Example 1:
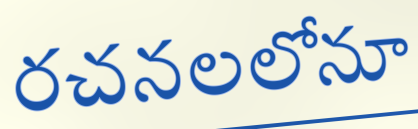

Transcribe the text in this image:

రచనలలోనూ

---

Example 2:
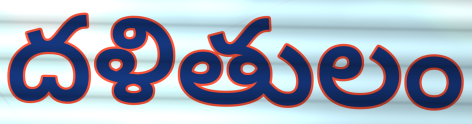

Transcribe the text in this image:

దళితులం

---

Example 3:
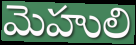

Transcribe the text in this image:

మెహులి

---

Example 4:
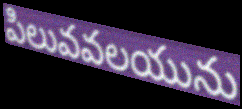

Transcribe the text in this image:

పిలువవలయును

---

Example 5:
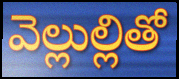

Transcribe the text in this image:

వెల్లుల్లితో